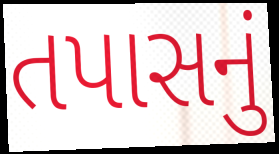
તપાસનું